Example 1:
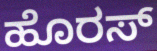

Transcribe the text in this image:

ಹೊರಸ್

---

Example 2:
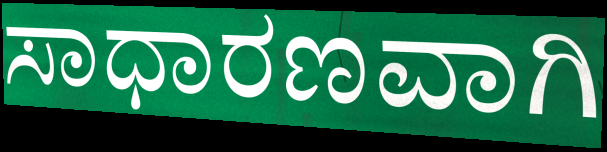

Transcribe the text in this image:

ಸಾಧಾರಣವಾಗಿ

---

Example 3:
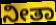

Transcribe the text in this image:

ನೀತಾ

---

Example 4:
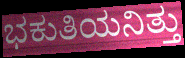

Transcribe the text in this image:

ಭಕುತಿಯನಿತ್ತು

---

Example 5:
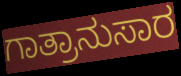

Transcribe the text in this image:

ಗಾತ್ರಾನುಸಾರ